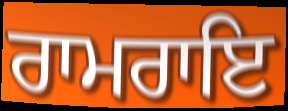
ਰਾਮਰਾਇ